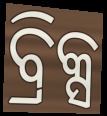
ବ୍ରିକ୍ସ